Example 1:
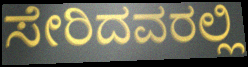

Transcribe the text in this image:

ಸೇರಿದವರಲ್ಲಿ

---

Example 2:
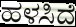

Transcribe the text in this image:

ಹಳಸಿದೆ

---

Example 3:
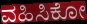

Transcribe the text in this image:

ವಹಿಸಿಕೋ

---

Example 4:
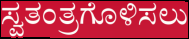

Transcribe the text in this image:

ಸ್ವತಂತ್ರಗೊಳಿಸಲು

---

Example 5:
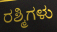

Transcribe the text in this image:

ರಶ್ಮಿಗಳು